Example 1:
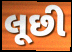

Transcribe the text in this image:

લૂછી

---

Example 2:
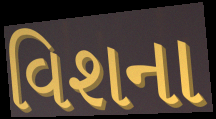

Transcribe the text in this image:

વિશના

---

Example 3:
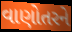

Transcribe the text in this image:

વાણોતરને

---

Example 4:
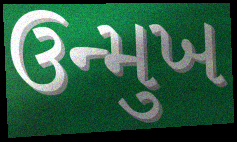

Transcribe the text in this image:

ઉન્મુખ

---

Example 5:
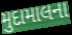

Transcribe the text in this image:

મુદામાલના